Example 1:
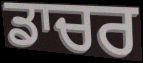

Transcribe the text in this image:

ਡਾਚਰ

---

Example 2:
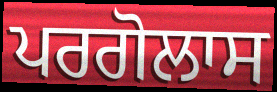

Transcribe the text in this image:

ਪਰਗੋਲਾਸ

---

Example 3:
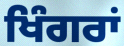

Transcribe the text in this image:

ਖਿੰਗਰਾਂ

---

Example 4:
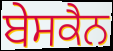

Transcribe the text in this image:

ਬੇਸਕੈਨ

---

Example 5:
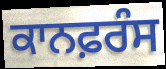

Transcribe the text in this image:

ਕਾਨਫ਼ਰੰਸ